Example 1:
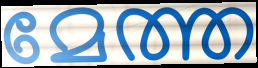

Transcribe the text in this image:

മേത്ത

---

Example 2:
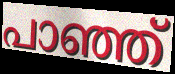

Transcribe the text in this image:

പാഞ്ഞ്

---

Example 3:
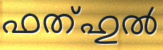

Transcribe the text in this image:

ഫത്ഹുൽ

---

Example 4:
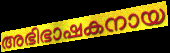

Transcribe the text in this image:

അഭിഭാഷകനായ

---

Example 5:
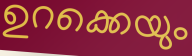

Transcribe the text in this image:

ഉറക്കെയും